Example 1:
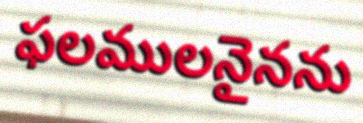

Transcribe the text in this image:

ఫలములనైనను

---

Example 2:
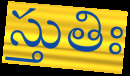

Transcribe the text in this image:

స్తుతిః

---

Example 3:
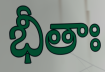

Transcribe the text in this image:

భీతాః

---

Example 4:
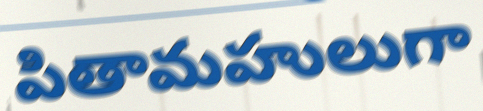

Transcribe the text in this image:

పితామహులుగా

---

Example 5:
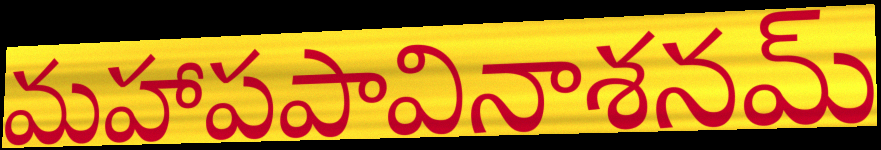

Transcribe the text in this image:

మహాపపావినాశనమ్